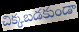
చిక్కబడకుండా